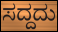
ಸದ್ದದು